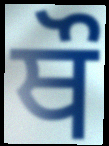
ਥੌ